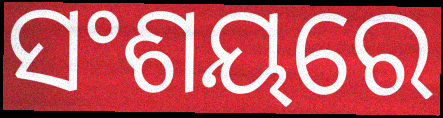
ସଂଶୟରେ